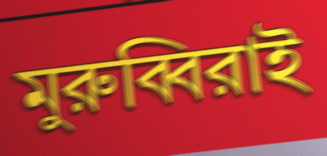
মুরুব্বিরাই